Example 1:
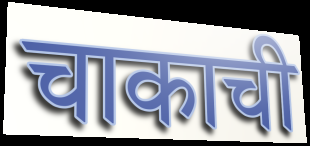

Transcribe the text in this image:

चाकाची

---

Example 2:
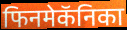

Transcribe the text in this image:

फिनमेकॅनिका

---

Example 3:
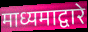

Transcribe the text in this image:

माध्यमाद्वारे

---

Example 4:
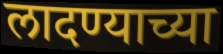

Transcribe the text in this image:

लादण्याच्या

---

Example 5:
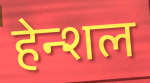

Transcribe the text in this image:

हेन्शल